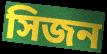
সিজন